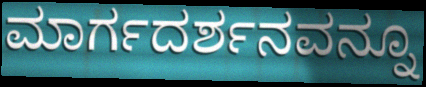
ಮಾರ್ಗದರ್ಶನವನ್ನೂ